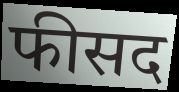
फीसद